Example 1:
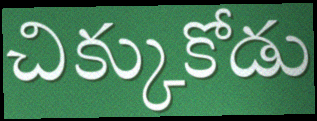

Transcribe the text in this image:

చిక్కుకోడు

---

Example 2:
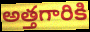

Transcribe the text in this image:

అత్తగారికి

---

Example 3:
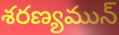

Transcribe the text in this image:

శరణ్యమున్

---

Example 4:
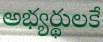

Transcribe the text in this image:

అభ్యర్థులకే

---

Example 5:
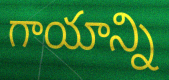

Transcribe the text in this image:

గాయాన్ని